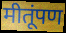
मीतूंपण